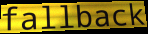
fallback